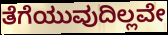
ತೆಗೆಯುವುದಿಲ್ಲವೇ